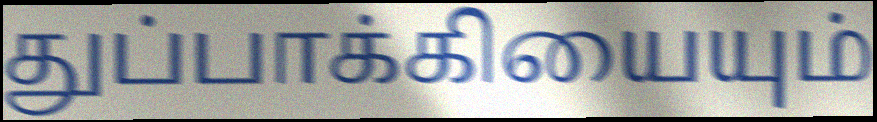
துப்பாக்கியையும்